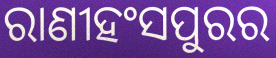
ରାଣୀହଂସପୁରର